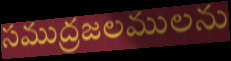
సముద్రజలములను